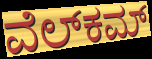
ವೆಲ್‍ಕಮ್